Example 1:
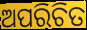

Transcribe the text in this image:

ଅପରିଚିତ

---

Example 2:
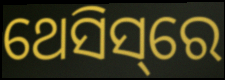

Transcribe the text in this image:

ଥେସିସ୍‌ରେ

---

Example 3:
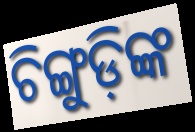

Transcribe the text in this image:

ଚିଙ୍ଗୁଡ଼ିଙ୍କ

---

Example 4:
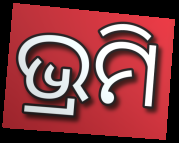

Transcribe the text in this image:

ଭ୍ରମି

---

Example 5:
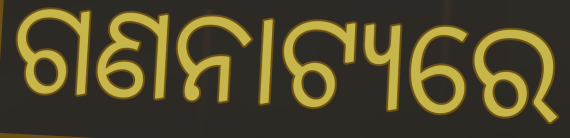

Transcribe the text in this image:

ଗଣନାଟ୍ୟରେ